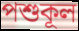
পশুকূল